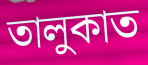
তালুকাত